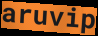
aruvip